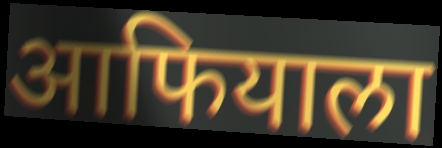
आफियाला